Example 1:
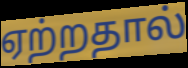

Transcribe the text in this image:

ஏற்றதால்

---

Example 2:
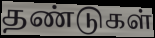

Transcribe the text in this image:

தண்டுகள்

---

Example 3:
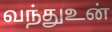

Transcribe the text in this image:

வந்துஉன்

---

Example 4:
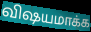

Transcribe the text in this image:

விஷயமாக்க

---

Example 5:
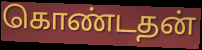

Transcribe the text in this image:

கொண்டதன்